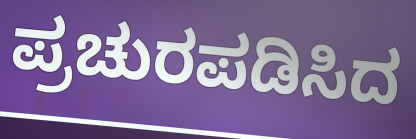
ಪ್ರಚುರಪಡಿಸಿದ